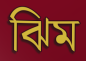
ঝিম